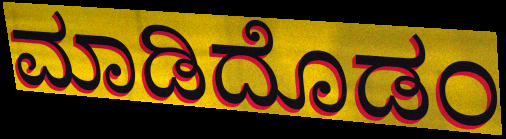
ಮಾಡಿದೊಡಂ